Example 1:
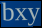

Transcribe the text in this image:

bxy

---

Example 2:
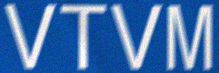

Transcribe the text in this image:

VTVM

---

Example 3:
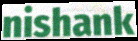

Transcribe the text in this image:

nishank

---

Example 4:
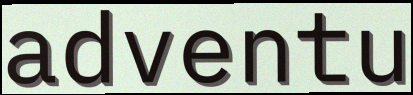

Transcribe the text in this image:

adventu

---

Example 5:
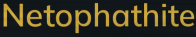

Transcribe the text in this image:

Netophathite